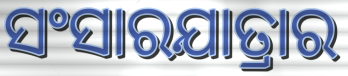
ସଂସାରଯାତ୍ରାର